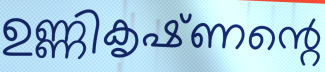
ഉണ്ണികൃഷ്‌ണന്റെ